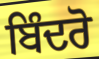
ਬਿੰਦਰੋ